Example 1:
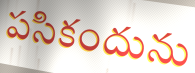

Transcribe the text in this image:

పసికందును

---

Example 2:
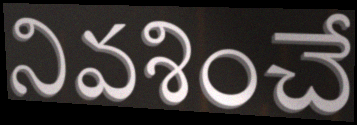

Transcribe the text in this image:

నివశించే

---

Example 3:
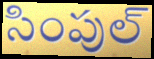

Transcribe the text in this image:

సింపుల్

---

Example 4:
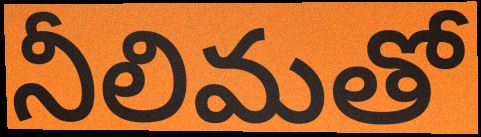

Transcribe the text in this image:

నీలిమతో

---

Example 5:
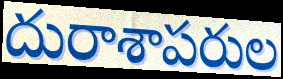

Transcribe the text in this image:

దురాశాపరుల